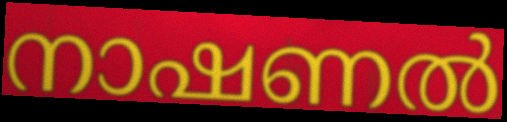
നാഷണൽ